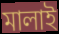
মালাই